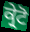
ਕ੍ਰੇਟੋ